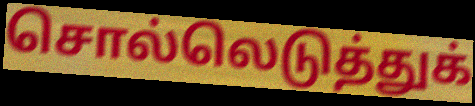
சொல்லெடுத்துக்